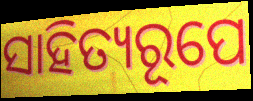
ସାହିତ୍ୟରୂପେ